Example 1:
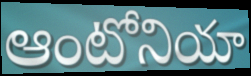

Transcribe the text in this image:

ఆంటోనియా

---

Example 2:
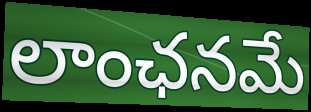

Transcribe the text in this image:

లాంఛనమే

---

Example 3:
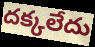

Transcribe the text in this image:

దక్కలేదు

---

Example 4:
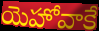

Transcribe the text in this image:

యెహోవాకే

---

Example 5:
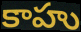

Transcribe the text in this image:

కాహు